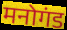
मनोगंड